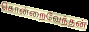
கொன்றைவேந்தன்